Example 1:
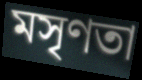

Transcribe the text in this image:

মসৃণতা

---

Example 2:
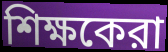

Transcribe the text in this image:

শিক্ষকেরা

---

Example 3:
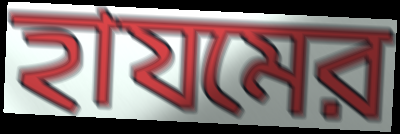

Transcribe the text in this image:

হাযমের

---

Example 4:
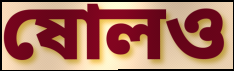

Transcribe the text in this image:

ষোলও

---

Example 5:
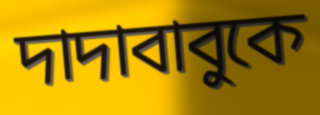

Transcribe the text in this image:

দাদাবাবুকে